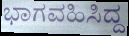
ಭಾಗವಹಿಸಿದ್ದ